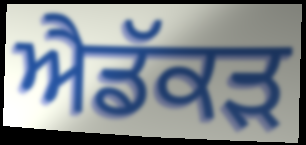
ਐਡੱਕੜ